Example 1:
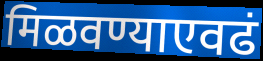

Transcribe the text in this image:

मिळवण्याएवढं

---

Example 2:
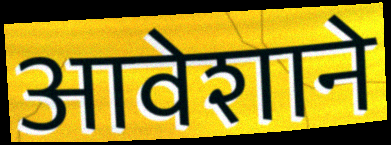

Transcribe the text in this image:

आवेशाने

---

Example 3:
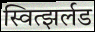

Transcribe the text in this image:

स्वित्झर्लड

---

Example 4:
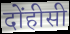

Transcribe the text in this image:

दोंहीसी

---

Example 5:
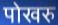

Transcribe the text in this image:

पोखरु